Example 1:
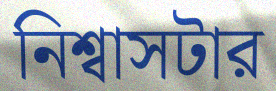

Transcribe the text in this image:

নিশ্বাসটার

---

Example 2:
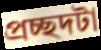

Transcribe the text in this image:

প্রচ্ছদটা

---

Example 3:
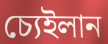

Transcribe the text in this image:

চ্যেইলান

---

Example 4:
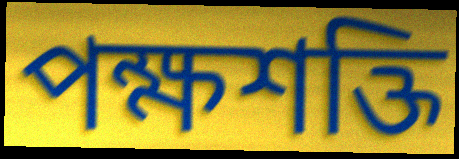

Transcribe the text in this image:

পক্ষশক্তি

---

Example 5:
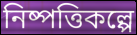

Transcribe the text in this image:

নিষ্পত্তিকল্পে